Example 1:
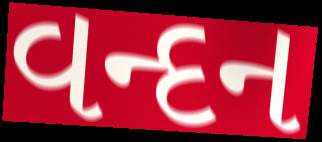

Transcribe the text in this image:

વન્દન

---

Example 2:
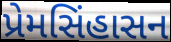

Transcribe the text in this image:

પ્રેમસિંહાસન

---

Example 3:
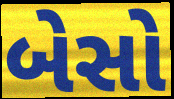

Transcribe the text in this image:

બેસો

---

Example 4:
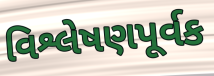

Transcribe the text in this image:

વિશ્લેષણપૂર્વક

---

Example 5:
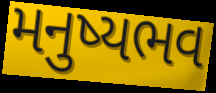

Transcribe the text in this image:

મનુષ્યભવ